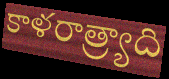
కాళరాత్ర్యాది